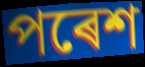
পৰেশ